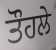
ਤੌਹਲੇ